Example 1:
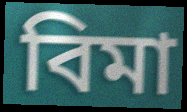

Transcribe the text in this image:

বিমা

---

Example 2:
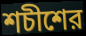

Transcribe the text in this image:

শচীশের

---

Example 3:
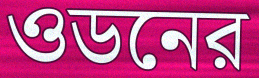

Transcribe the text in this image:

ওডনের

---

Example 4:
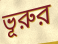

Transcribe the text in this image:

ভূরুর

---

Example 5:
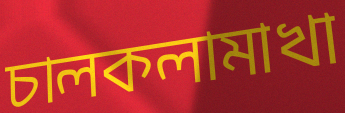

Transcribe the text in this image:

চালকলামাখা